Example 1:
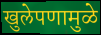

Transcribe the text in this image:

खुलेपणामुळे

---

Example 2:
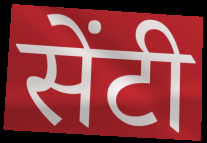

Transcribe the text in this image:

सेंटी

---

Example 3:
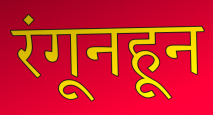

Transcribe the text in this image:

रंगूनहून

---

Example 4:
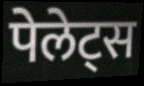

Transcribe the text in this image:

पेलेट्स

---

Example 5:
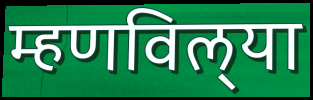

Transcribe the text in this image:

म्हणविल्या